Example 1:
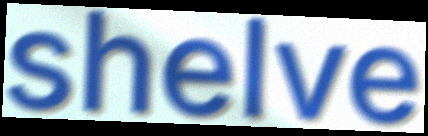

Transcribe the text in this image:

shelve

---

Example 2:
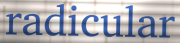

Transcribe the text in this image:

radicular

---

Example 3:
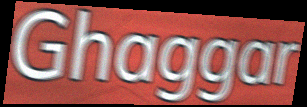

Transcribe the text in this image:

Ghaggar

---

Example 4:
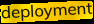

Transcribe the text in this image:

deployment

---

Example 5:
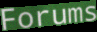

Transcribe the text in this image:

Forums